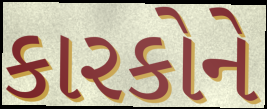
કારકોને